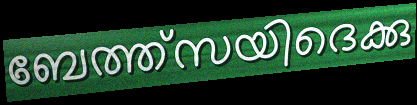
ബേത്ത്സയിദെക്കു